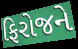
ફિરોજને